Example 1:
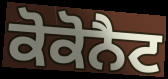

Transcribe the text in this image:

ਕੋਕੋਨੈਟ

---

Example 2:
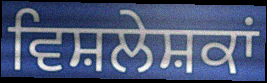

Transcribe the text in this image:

ਵਿਸ਼ਲੇਸ਼ਕਾਂ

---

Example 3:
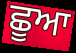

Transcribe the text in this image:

ਛੂਆ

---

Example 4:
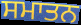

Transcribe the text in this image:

ਸਮਾਤਨ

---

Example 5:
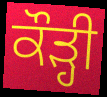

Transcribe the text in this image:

ਕੌੜ੍ਹੀ